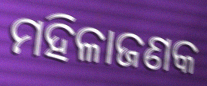
ମହିଳାଜଣକ